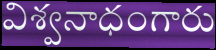
విశ్వనాధంగారు